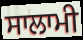
ਸਾਲਾਮੀ